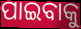
ପାଇବାକୁ